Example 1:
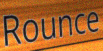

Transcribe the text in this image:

Rounce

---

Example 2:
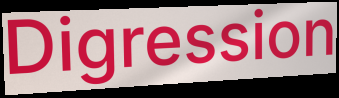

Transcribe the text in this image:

Digression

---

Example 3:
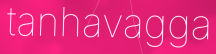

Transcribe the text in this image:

tanhavagga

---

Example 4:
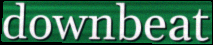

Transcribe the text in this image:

downbeat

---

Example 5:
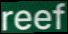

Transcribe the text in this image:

reef